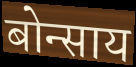
बोन्साय